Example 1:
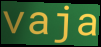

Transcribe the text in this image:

vaja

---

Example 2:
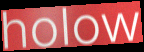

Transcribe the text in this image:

holow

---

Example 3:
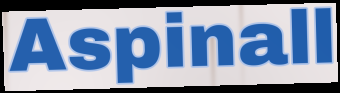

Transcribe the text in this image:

Aspinall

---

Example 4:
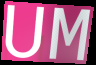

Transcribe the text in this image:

UM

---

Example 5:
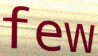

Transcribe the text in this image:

few